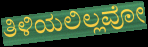
ತಿಳಿಯಲಿಲ್ಲವೋ